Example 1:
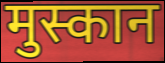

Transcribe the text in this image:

मुस्कान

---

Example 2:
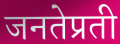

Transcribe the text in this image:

जनतेप्रती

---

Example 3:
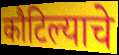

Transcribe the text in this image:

कौटिल्याचे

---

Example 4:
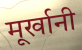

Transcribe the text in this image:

मूर्खानी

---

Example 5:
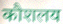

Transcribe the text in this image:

कौशलय